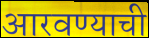
आरवण्याची